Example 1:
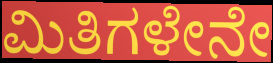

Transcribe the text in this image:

ಮಿತಿಗಳೇನೇ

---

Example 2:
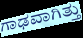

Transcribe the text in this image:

ಗಾಢವಾಗಿತ್ತು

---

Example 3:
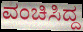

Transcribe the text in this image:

ವಂಚಿಸಿದ್ದ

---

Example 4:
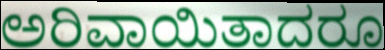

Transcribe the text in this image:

ಅರಿವಾಯಿತಾದರೂ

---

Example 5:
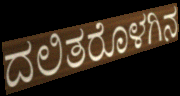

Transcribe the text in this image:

ದಲಿತರೊಳಗಿನ